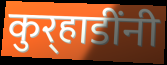
कुर्‍हाडींनी